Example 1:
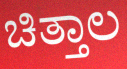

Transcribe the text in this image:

ಚಿತ್ತಾಲ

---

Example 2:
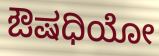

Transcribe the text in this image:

ಔಷಧಿಯೋ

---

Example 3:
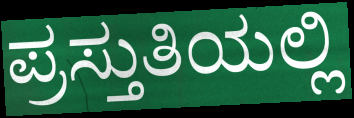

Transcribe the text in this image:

ಪ್ರಸ್ತುತಿಯಲ್ಲಿ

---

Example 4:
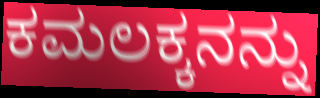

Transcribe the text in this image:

ಕಮಲಕ್ಕನನ್ನು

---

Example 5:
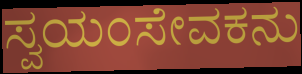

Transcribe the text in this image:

ಸ್ವಯಂಸೇವಕನು